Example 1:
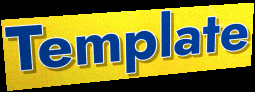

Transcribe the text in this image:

Template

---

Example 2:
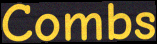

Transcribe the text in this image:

Combs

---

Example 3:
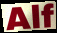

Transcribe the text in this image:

Alf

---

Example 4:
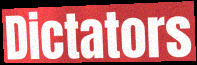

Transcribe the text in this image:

Dictators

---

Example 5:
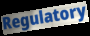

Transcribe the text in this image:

Regulatory